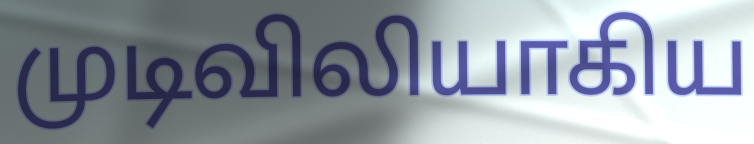
முடிவிலியாகிய